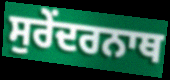
ਸੁਰੇਂਦਰਨਾਥ